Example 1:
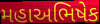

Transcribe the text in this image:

મહાઅભિષેક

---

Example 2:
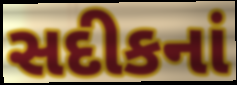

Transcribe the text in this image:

સદીકનાં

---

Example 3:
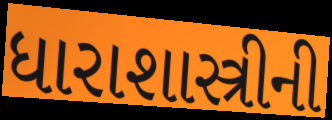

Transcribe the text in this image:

ધારાશાસ્ત્રીની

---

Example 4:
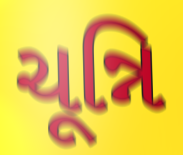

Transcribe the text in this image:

ચૂન્નિ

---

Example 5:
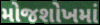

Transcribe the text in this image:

મોજશોખમાં